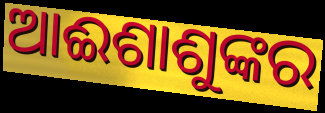
ଆଈଶାଶୁଙ୍କର